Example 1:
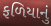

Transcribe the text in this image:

ફળિયાનું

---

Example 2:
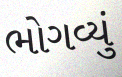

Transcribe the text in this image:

ભોગવ્યું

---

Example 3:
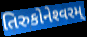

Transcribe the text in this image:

તિરુકોનેશ્‍વરમ્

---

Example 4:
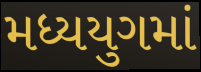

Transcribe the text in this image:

મધ્યયુગમાં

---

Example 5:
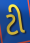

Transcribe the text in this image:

ટી